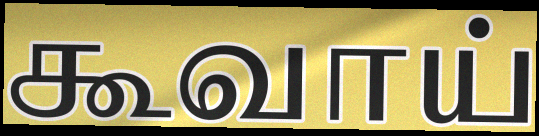
கூவாய்